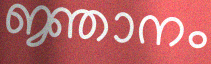
ജ്ഞാനം